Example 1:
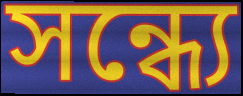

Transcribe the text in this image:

সন্ধ্যে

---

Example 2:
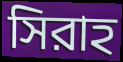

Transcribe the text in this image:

সিরাহ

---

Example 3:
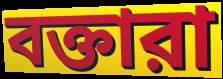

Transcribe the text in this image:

বক্তারা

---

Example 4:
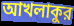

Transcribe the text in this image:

আখলাকুর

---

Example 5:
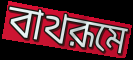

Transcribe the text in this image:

বাথরূমে